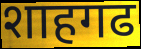
शाहगढ